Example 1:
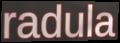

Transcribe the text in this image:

radula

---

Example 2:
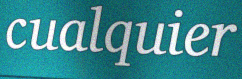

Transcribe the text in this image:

cualquier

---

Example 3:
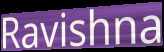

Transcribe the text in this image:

Ravishna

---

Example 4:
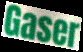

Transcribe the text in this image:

Gaser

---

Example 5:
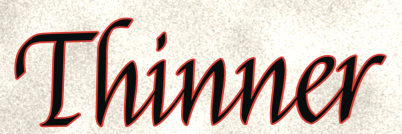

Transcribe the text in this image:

Thinner